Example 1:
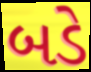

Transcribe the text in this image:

બડે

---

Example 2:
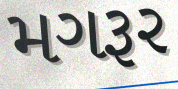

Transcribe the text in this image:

મગરૂર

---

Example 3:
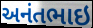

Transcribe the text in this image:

અનંતભાઇ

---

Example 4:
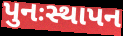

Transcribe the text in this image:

પુનઃસ્થાપન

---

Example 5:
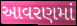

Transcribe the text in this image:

આવરણમાં